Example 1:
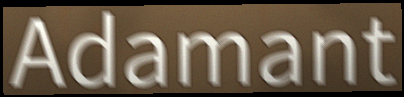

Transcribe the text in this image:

Adamant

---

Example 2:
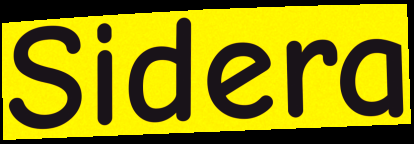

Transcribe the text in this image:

Sidera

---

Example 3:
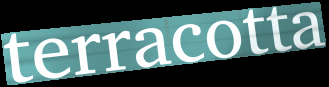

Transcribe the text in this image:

terracotta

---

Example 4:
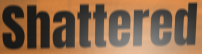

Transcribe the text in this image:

Shattered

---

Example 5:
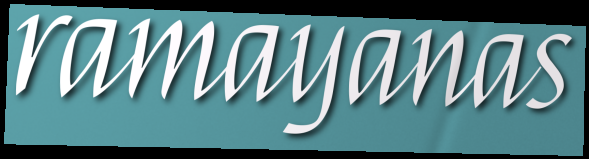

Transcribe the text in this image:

ramayanas